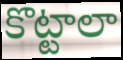
కొట్టాలా